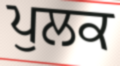
ਪੁਲਕ